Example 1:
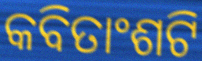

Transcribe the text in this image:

କବିତାଂଶଟି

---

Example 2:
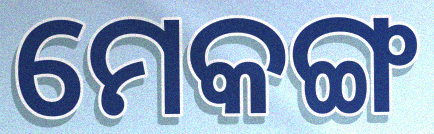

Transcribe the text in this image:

ମେକଙ୍ଗ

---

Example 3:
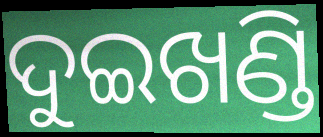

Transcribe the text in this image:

ଦୁଇଖଣ୍ଡି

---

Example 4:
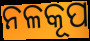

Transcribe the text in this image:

ନଳକୂପ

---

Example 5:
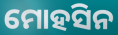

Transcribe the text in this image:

ମୋହସିନ